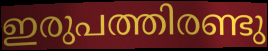
ഇരുപത്തിരണ്ടു